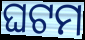
ଘଟମ